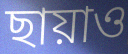
ছায়াও